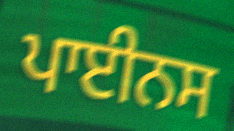
ਪਾਈਨਸ